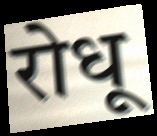
रोधू